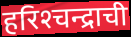
हरिश्चन्द्राची